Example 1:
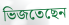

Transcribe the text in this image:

ভিজতেছেন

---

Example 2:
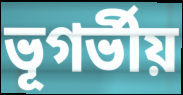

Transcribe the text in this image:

ভূগর্ভীয়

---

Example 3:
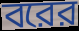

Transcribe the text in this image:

বরের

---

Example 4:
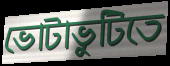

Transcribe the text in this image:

ভোটাভুটিতে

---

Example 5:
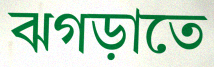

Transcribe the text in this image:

ঝগড়াতে